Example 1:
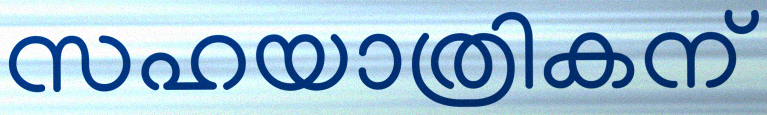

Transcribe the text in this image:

സഹയാത്രികന്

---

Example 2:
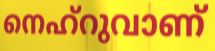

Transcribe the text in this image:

നെഹ്റുവാണ്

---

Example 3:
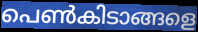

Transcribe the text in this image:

പെൺകിടാങ്ങളെ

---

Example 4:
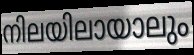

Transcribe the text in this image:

നിലയിലായാലും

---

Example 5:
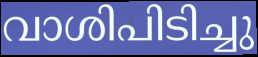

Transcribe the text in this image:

വാശിപിടിച്ചു